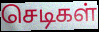
செடிகள்